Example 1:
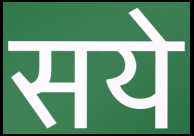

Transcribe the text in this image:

सये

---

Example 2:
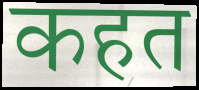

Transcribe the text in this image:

कहत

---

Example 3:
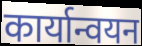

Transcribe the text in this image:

कार्यान्वयन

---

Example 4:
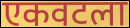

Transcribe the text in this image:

एकवटला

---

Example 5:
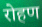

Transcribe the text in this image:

रोहण